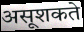
असूशकते